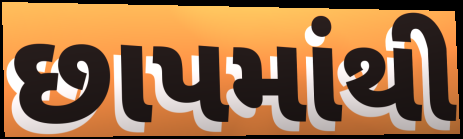
છાપમાંથી